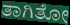
ತಾಗಿತೋ